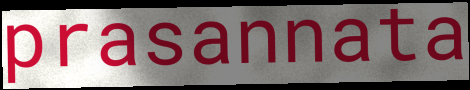
prasannata